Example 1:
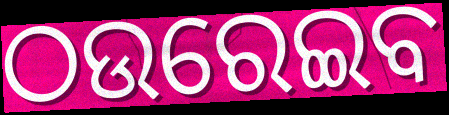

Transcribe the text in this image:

ଠଉରେଇବ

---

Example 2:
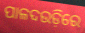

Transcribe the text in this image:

ପାଳଦଉଡ଼ିରେ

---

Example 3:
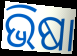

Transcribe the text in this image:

ଭିଷା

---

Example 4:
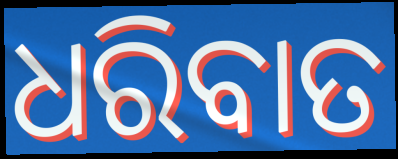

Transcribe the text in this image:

ଧରିବାତ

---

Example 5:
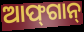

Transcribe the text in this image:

ଆଫ୍‌ଗାନ୍